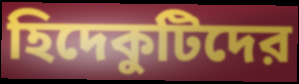
হিদেকুটিদের